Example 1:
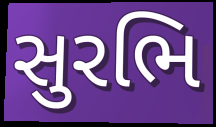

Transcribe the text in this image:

સુરભિ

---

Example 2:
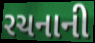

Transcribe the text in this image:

રચનાની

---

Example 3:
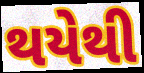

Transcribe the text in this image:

થયેથી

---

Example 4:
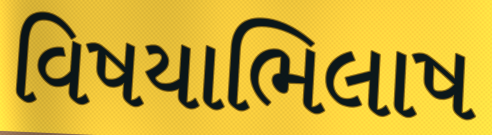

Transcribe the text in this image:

વિષયાભિલાષ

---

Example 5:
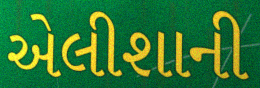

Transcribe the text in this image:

એલીશાની